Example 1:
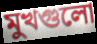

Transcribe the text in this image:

মুখগুলো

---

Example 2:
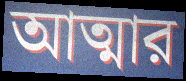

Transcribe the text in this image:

আত্মার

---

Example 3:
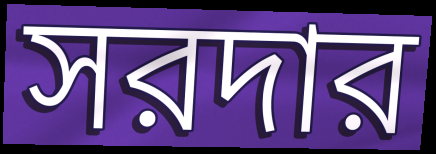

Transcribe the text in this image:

সরদার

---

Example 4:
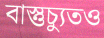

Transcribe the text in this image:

বাস্তুচ্যুতও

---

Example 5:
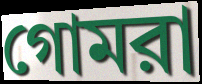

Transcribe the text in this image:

গোমরা